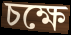
চক্ষে